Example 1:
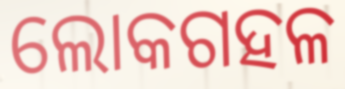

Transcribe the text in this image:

ଲୋକଗହଳ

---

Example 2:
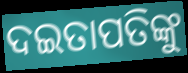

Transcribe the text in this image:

ଦଇତାପତିଙ୍କୁ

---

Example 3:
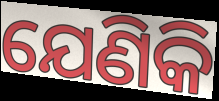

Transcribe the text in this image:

ଯେଣିକି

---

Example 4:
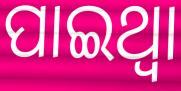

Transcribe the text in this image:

ପାଇଥ୍ବା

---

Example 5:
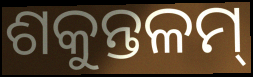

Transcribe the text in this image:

ଶକୁନ୍ତଳମ୍